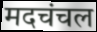
मदचंचल